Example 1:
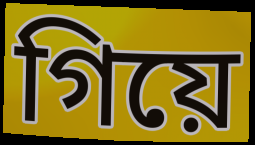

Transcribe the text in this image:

গিয়ে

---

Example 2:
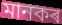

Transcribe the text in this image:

মানকৰ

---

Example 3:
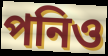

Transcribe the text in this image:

পনিও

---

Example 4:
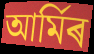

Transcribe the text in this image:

আৰ্মিৰ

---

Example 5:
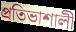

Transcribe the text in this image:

প্ৰতিভাশালী